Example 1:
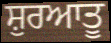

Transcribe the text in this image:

ਸ਼ੁਰਆਤੂ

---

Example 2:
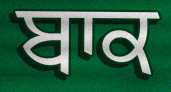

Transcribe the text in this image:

ਬਾਕ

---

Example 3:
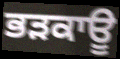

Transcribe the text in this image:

ਭੜਕਾਊ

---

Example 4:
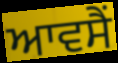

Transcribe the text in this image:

ਆਵਸੈਂ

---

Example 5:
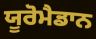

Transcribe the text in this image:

ਯੂਰੋਮੈਡਾਨ